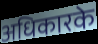
अधिकारके